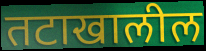
तटाखालील